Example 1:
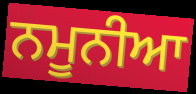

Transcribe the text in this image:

ਨਮੂਨੀਆ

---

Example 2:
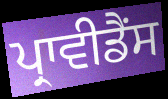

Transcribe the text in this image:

ਪ੍ਰਾਵੀਡੈਂਸ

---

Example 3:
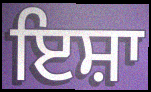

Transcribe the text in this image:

ਇਸ਼ਾ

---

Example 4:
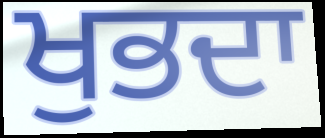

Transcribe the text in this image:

ਖੁਭਦਾ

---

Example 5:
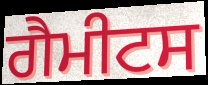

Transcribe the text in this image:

ਗੈਮੀਟਸ